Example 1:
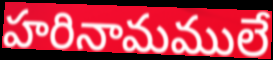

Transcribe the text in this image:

హరినామములే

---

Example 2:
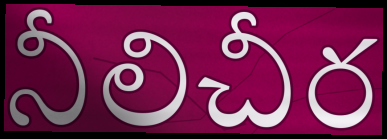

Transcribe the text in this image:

నీలిచీర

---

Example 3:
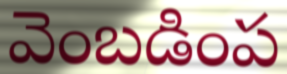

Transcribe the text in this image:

వెంబడింప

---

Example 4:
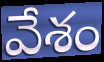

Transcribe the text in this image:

వేశం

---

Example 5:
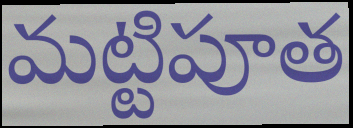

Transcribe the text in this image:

మట్టిపూత